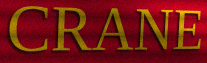
CRANE